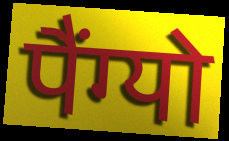
पैंग्यो